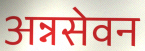
अन्नसेवन